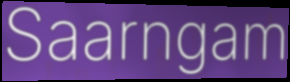
Saarngam